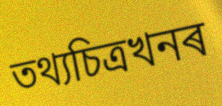
তথ্যচিত্ৰখনৰ